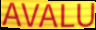
AVALU